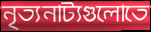
নৃত্যনাট্যগুলোতে